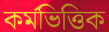
কর্মভিত্তিক